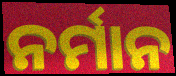
ନର୍ମାନ